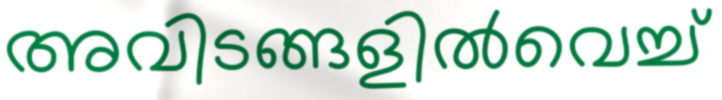
അവിടങ്ങളിൽവെച്ച്